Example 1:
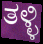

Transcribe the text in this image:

ತಳ್ಳಿ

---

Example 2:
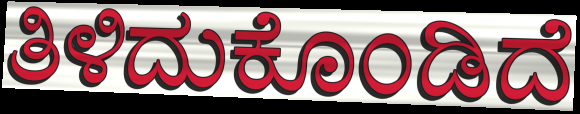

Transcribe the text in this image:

ತಿಳಿದುಕೊಂಡಿದೆ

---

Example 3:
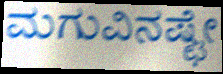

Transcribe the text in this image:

ಮಗುವಿನಷ್ಟೇ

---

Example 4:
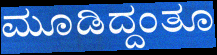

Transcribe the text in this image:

ಮೂಡಿದ್ದಂತೂ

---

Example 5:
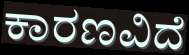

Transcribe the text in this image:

ಕಾರಣವಿದೆ